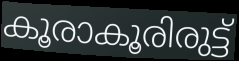
കൂരാകൂരിരുട്ട്